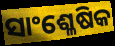
ସାଂଶ୍ଳେଷିକ